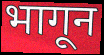
भागून